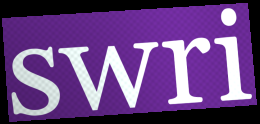
swri